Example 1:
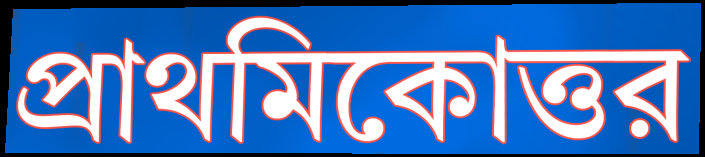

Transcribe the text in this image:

প্রাথমিকোত্তর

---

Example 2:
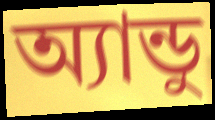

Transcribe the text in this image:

অ্যান্ডু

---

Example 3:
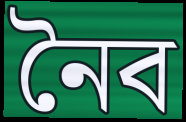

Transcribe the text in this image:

নৈব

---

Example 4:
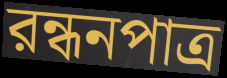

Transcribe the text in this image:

রন্ধনপাত্র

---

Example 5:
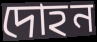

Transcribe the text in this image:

দোহন